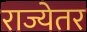
राज्येतर